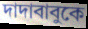
দাদাবাবুকে